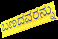
ಬಣದವರನ್ನು